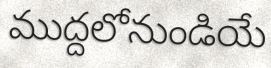
ముద్దలోనుండియే